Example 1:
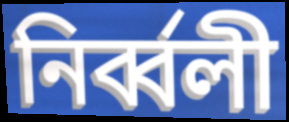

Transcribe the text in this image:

নিৰ্ব্বলী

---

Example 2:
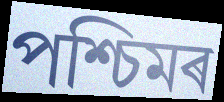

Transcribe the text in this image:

পশ্চিমৰ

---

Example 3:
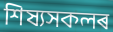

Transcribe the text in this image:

শিষ্যসকলৰ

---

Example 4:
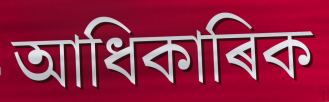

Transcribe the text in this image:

আধিকাৰিক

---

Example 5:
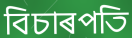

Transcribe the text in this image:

বিচাৰপতি